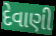
દેવાણી